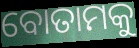
ବୋତାମକୁ